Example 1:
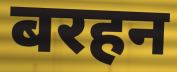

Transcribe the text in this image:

बरहन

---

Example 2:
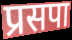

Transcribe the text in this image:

प्रसपा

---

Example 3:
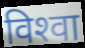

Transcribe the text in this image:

विश्‍वा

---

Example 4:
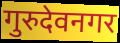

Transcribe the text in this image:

गुरुदेवनगर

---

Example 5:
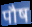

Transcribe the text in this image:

पौष